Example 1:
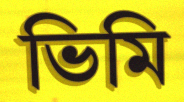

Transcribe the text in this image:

ভিমি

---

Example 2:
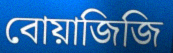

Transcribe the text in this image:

বোয়াজিজি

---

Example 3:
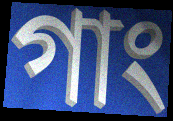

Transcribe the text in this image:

গাং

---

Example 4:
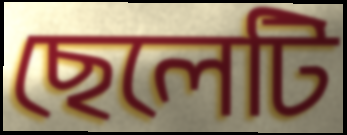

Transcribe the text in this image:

ছেলেটি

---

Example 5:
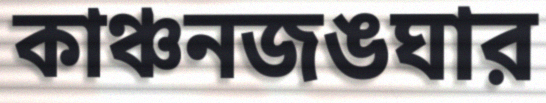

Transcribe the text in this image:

কাঞ্চনজঙঘার